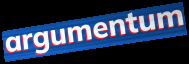
argumentum